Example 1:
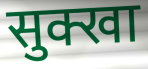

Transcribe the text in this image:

सुक्खा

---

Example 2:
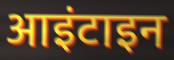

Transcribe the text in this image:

आइंटाइन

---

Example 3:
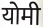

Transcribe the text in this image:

योमी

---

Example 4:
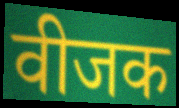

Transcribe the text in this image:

वीजक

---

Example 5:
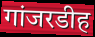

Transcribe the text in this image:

गांजरडीह